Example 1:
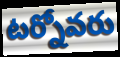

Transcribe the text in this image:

టర్నోవరు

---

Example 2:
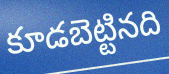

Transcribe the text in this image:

కూడబెట్టినది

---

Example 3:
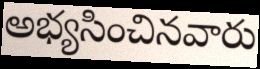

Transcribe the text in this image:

అభ్యసించినవారు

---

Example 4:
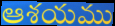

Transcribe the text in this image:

ఆశయము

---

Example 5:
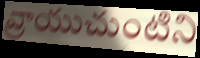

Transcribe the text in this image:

వ్రాయుచుంటిని